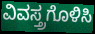
ವಿವಸ್ತ್ರಗೊಳಿಸಿ